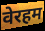
वेरहम